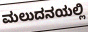
ಮಲುದನಯಲ್ಲಿ